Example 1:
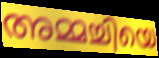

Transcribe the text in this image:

അമ്മച്ചിയെ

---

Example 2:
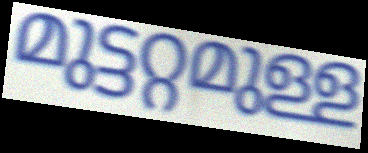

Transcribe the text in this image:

മുട്ടറ്റമുള്ള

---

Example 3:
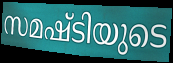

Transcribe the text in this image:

സമഷ്ടിയുടെ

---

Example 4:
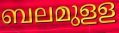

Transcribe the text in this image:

ബലമുളള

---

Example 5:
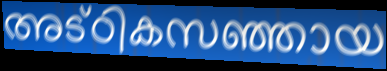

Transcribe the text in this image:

അട്ഠികസഞ്ഞായ